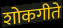
शोकगीते